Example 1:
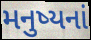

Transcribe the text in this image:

મનુષ્યનાં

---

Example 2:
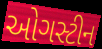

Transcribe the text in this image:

ઓગસ્ટીન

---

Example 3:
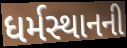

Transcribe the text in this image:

ધર્મસ્થાનની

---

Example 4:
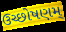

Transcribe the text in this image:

ઉચ્છોષણમ્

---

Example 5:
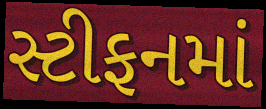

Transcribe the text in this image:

સ્ટીફનમાં